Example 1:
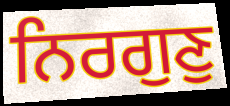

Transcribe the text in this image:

ਨਿਰਗੁਣੁ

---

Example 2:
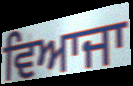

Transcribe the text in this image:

ਵਿਆਜਾ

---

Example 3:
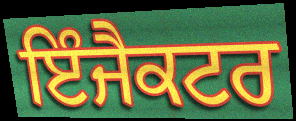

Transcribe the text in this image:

ਇੰਜੈਕਟਰ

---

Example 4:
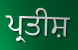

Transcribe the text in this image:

ਪ੍ਰਤੀਸ਼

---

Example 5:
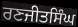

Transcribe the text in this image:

ਰਣਜੀਤਸਿੰਘ